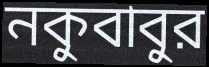
নকুবাবুর